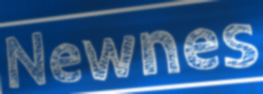
Newnes